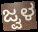
ಜ್ವಳ